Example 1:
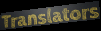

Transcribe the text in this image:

Translators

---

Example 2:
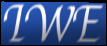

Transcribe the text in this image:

IWE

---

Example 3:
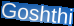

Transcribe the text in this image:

Goshthi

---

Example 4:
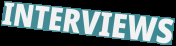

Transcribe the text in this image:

INTERVIEWS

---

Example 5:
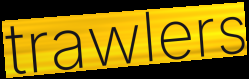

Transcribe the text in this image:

trawlers